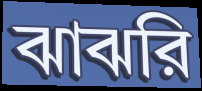
ঝাঝরি